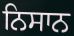
ਨਿਸਾਨ